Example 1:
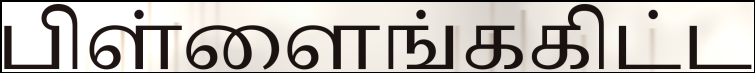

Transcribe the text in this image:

பிள்ளைங்ககிட்ட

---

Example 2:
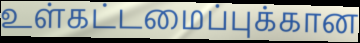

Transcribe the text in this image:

உள்கட்டமைப்புக்கான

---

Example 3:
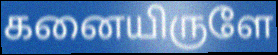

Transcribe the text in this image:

கனையிருளே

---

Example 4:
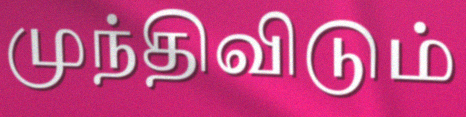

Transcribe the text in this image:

முந்திவிடும்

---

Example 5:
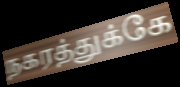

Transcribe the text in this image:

நகரத்துக்கே